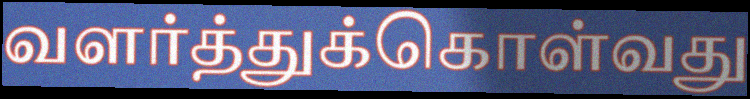
வளர்த்துக்கொள்வது